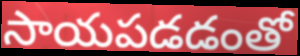
సాయపడడంతో